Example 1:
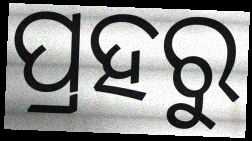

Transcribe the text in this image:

ପ୍ରହରୁ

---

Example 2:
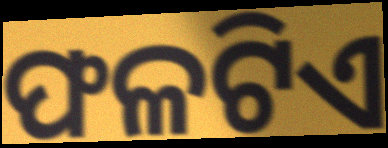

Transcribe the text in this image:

ଫଳଟିଏ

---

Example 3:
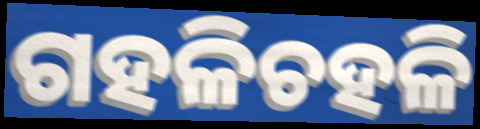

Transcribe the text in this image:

ଗହଳିଚହଳି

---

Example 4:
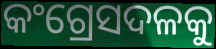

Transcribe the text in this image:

କଂଗ୍ରେସଦଳକୁ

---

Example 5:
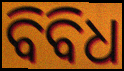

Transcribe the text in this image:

ବିବିଧ